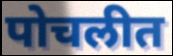
पोचलीत